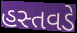
હસ્તવડે